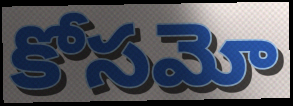
కోసమో